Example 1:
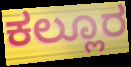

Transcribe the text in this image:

ಕಲ್ಲೂರ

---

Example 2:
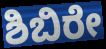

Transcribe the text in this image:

ಶಿಬಿರೇ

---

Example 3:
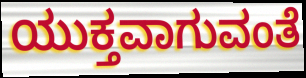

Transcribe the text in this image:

ಯುಕ್ತವಾಗುವಂತೆ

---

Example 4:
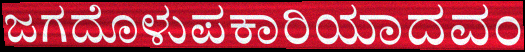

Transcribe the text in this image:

ಜಗದೊಳುಪಕಾರಿಯಾದವಂ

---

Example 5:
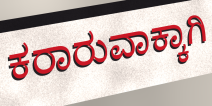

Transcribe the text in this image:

ಕರಾರುವಾಕ್ಕಾಗಿ